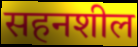
सहनशील